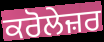
ਕਰੋਲੇਜ਼ਰ